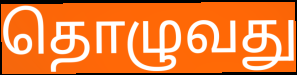
தொழுவது